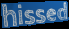
hissed